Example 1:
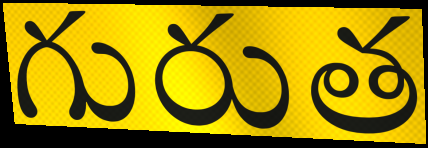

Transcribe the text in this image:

గురుత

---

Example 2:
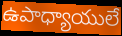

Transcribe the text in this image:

ఉపాధ్యాయులే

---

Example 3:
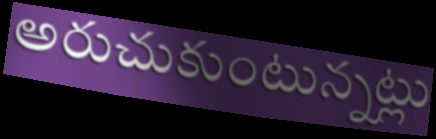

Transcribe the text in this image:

అరుచుకుంటున్నట్లు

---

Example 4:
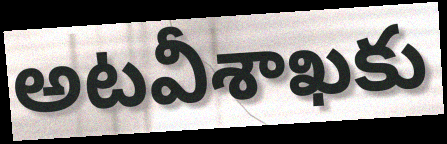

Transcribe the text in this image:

అటవీశాఖకు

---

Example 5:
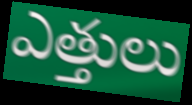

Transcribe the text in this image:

ఎత్తులు